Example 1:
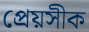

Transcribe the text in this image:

প্ৰেয়সীক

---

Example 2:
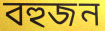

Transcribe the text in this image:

বহুজন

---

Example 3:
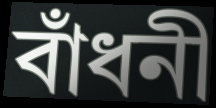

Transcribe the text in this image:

বাঁধনী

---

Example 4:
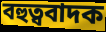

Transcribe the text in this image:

বহুত্ববাদক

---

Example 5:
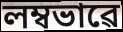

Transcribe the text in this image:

লম্বভাৱে